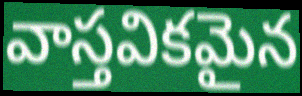
వాస్తవికమైన